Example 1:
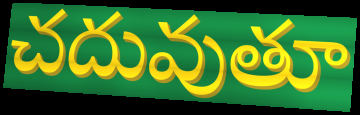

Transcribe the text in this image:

చదువుతూ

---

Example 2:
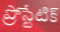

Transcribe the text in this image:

ప్రోస్టేటిక్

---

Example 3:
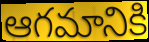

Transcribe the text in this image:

ఆగమానికి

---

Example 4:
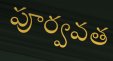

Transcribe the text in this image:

పూర్వవత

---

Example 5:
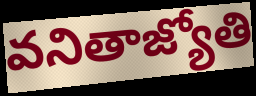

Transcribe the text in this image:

వనితాజ్యోతి